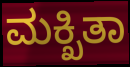
ಮಕ್ಖಿತಾ